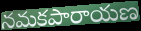
నమకపారాయణ